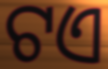
ଟଏ